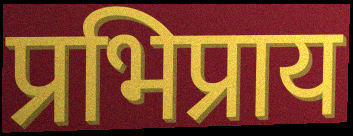
प्रभिप्राय